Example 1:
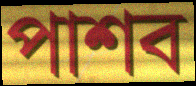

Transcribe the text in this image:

পাশব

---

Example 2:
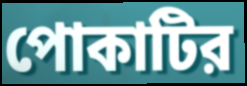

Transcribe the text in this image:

পোকাটির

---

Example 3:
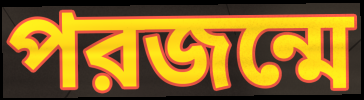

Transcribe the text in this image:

পরজন্মে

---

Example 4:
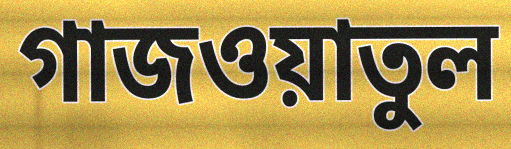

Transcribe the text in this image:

গাজওয়াতুল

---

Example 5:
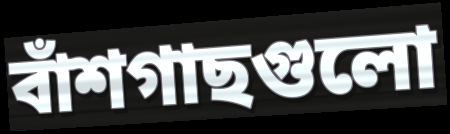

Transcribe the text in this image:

বাঁশগাছগুলো